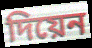
দিয়েন